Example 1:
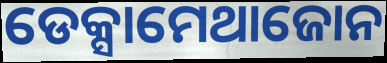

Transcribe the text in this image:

ଡେକ୍ସାମେଥାଜୋନ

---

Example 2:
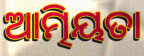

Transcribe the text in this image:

ଆତ୍ମିୟତା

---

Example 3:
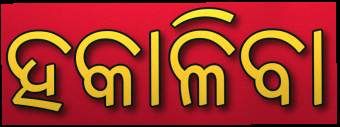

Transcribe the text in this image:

ହକାଳିବା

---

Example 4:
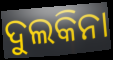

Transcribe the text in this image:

ଦୁଲକିନା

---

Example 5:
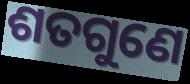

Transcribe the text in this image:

ଶତଗୁଣେ